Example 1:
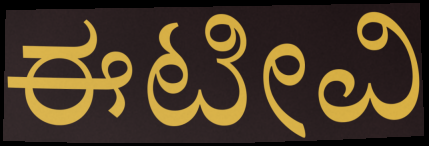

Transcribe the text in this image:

ಈಟೀವಿ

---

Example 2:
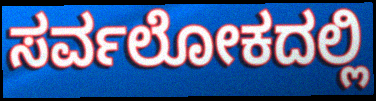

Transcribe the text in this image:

ಸರ್ವಲೋಕದಲ್ಲಿ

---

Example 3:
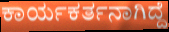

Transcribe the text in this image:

ಕಾರ್ಯಕರ್ತನಾಗಿದ್ದೆ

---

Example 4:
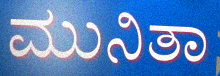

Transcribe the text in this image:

ಮುನಿತಾ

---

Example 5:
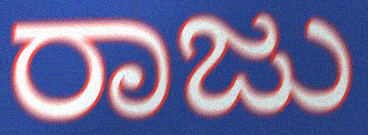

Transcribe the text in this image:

ರಾಜು